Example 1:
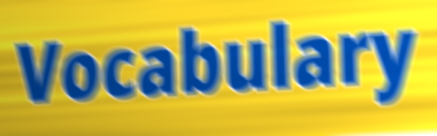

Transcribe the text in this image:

Vocabulary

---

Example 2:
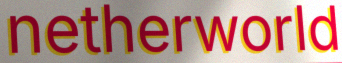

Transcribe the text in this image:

netherworld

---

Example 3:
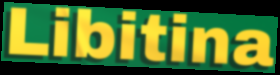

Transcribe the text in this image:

Libitina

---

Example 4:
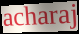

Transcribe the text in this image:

acharaj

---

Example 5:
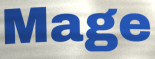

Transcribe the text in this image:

Mage